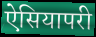
ऐसियापरी